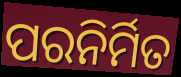
ପରନିର୍ମିତ